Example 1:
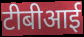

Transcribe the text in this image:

टीबीआई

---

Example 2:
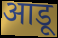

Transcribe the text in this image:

आडू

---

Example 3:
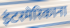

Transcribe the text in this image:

इंटरमेरिकाना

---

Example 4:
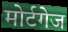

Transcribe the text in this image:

मोर्टगेज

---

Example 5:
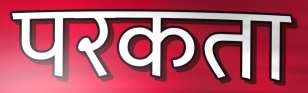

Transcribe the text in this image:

परकता